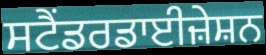
ਸਟੈਂਡਰਡਾਈਜ਼ੇਸ਼ਨ